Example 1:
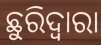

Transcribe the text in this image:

ଛୁରିଦ୍ୱାରା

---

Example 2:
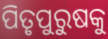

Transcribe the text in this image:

ପିତୃପୁରୁଷକୁ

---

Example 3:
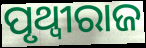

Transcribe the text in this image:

ପୃଥ୍ବୀରାଜ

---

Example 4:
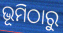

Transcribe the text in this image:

ଭୂମିଠାରୁ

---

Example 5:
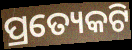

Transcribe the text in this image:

ପ୍ରତ୍ୟେକଟି